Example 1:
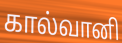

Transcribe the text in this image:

கால்வானி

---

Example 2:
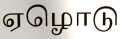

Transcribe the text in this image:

ஏழொடு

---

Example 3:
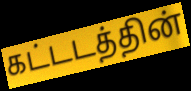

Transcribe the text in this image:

கட்டடத்தின்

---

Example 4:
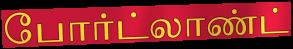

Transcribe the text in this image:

போர்ட்லாண்ட்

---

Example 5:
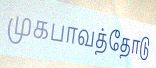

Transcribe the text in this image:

முகபாவத்தோடு